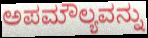
ಅಪಮೌಲ್ಯವನ್ನು